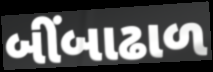
બીંબાઢાળ